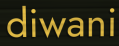
diwani